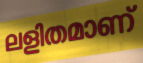
ലളിതമാണ്